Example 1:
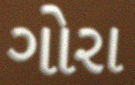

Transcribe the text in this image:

ગોરા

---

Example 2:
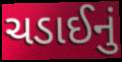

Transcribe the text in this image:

ચડાઈનું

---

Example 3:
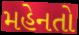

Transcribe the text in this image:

મહેનતો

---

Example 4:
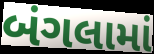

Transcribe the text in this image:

બંગલામાં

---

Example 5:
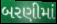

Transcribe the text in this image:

બરણીમાં